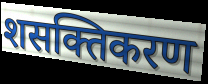
शसक्तिकरण